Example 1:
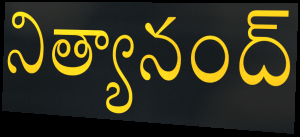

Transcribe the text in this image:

నిత్యానంద్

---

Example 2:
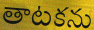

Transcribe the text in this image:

తాటకను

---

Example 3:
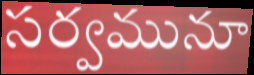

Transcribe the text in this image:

సర్వమునూ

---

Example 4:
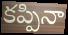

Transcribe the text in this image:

కప్పినా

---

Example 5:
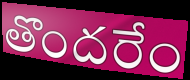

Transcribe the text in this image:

తొందరేం